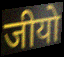
जीयो